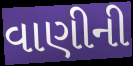
વાણીની